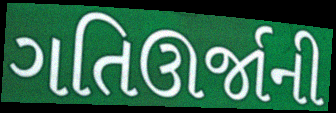
ગતિઊર્જાની